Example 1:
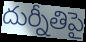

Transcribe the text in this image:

దుర్నీతిపై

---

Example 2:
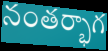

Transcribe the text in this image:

నంతర్భాగ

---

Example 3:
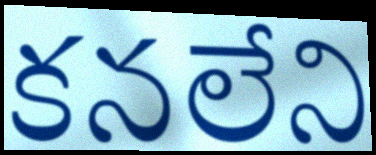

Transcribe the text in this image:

కనలేని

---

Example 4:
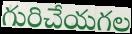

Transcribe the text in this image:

గురిచేయగల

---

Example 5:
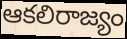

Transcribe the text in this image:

ఆకలిరాజ్యం